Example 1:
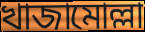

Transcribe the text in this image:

খাজামোল্লা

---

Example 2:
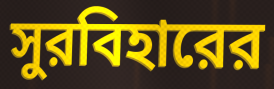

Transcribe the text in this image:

সুরবিহারের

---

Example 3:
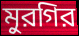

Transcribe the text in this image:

মুরগির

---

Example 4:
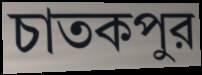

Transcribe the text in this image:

চাতকপুর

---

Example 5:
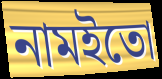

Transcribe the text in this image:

নামইতো